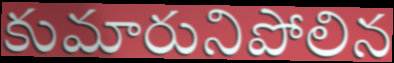
కుమారునిపోలిన